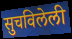
सुचविलेली